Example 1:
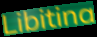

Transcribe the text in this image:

Libitina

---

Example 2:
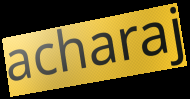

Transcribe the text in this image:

acharaj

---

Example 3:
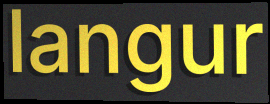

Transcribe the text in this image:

langur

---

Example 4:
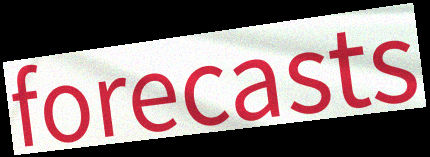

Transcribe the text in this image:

forecasts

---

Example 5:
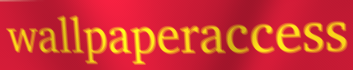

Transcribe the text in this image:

wallpaperaccess